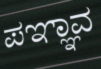
ಪಞ್ಞಾವ